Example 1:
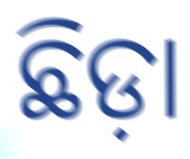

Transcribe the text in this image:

ଛିଡ଼ା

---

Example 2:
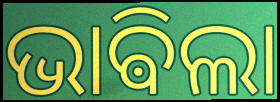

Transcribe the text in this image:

ଭାଵିଲା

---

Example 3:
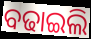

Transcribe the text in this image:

ବଢାଇଲି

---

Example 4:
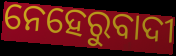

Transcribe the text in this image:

ନେହେରୁବାଦୀ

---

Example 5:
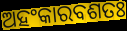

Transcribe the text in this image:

ଅହଂକାରବଶତଃ